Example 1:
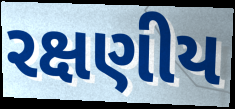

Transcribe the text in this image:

રક્ષણીય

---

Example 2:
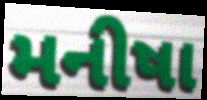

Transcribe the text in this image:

મનીષા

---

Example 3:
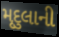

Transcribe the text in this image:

મૃદુલાની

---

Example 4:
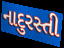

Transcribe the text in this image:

નાદુરસ્તી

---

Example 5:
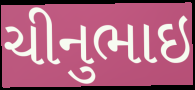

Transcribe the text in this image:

ચીનુભાઇ